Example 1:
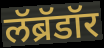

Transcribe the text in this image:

लॅब्रॅडॉर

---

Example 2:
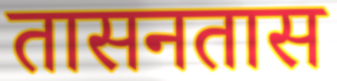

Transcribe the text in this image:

तासनतास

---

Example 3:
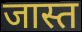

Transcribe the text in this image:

जास्त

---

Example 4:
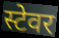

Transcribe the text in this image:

स्टेवर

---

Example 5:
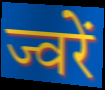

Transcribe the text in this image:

ज्वरें